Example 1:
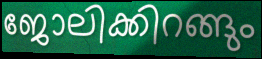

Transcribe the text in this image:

ജോലിക്കിറങ്ങും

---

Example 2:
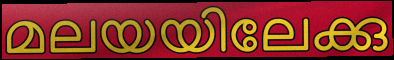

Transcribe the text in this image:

മലയയിലേക്കു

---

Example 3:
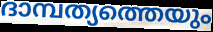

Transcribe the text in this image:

ദാമ്പത്യത്തെയും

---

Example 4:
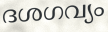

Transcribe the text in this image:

ദശഗവ്യം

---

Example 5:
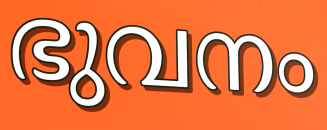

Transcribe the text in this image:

ഭുവനം